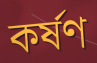
কর্ষণ